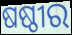
ଷଷ୍ଠୀର